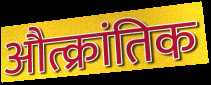
औत्क्रांतिक